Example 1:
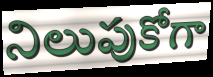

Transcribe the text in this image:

నిలుపుకోగా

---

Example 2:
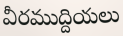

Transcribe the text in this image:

వీరముద్దియలు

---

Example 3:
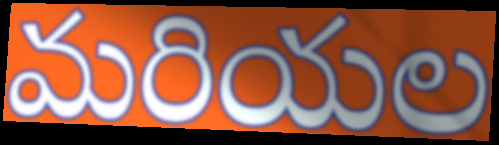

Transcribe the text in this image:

మరియల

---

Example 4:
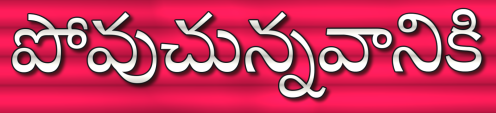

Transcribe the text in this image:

పోవుచున్నవానికి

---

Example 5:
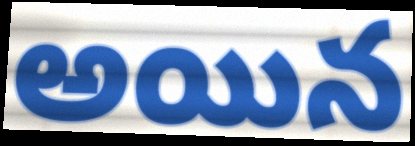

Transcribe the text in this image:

అయిన